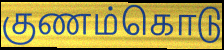
குணம்கொடு